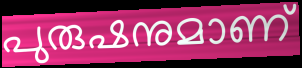
പുരുഷനുമാണ്